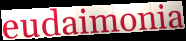
eudaimonia